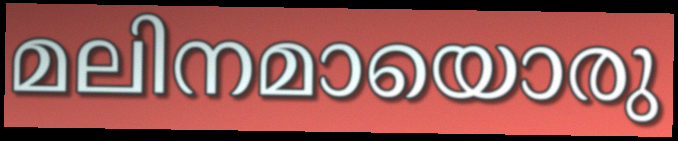
മലിനമായൊരു